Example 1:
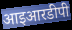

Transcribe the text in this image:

आइआरडीपी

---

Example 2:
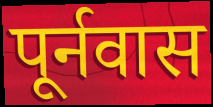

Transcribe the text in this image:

पूर्नवास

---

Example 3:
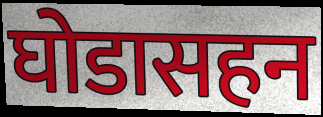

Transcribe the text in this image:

घोडासहन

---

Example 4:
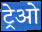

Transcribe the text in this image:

ट्रेओ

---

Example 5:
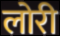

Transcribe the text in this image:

लोरी